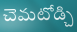
చెమటోడ్చి